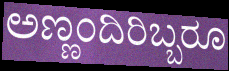
ಅಣ್ಣಂದಿರಿಬ್ಬರೂ